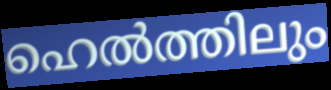
ഹെൽത്തിലും